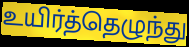
உயிர்த்தெழுந்து